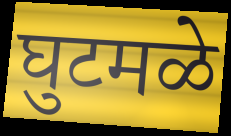
घुटमळे